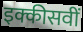
इक्‍कीसवीं